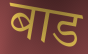
बाड